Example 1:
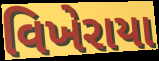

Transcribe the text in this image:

વિખેરાયા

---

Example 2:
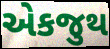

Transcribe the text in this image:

એકજુથ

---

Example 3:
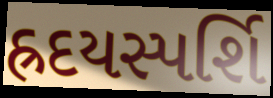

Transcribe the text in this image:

હ્રદયસ્પર્શિ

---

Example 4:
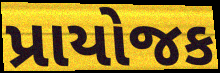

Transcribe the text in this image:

પ્રાયોજક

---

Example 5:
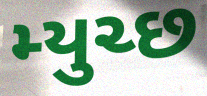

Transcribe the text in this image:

મ્યુચ્છ